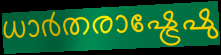
ധാർതരാഷ്ട്രേഷു